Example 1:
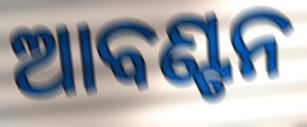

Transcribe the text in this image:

ଆବଣ୍ଟନ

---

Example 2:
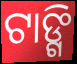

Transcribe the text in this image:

ଟାଙ୍ଗି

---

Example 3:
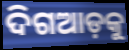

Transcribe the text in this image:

ଦିଗଆଡ଼କୁ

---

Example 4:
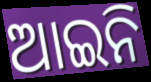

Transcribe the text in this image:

ଆଇନି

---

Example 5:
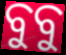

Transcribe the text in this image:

ବୁବୁ